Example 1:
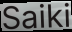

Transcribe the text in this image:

Saiki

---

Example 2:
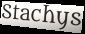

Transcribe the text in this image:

Stachys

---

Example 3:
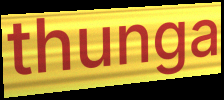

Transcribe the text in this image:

thunga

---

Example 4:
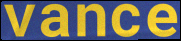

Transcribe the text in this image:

vance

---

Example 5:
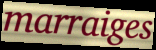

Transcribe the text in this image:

marraiges